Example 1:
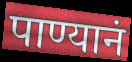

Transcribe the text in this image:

पाण्यानं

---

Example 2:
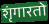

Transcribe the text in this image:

शृंगारतो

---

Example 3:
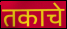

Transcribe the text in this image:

तकाचे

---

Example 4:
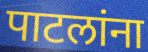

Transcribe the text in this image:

पाटलांना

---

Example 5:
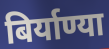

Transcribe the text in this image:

बिर्याण्या